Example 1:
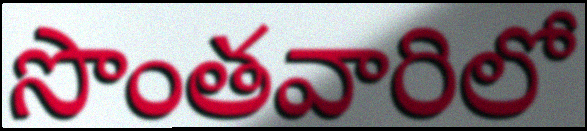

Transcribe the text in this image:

సొంతవారిలో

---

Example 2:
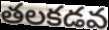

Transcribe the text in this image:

తలకడవ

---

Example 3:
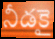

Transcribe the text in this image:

నీడకై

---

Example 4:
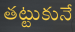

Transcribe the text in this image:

తట్టుకునే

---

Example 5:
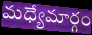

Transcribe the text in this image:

మధ్యేమార్గం